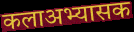
कलाअभ्यासक